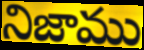
నిజాము